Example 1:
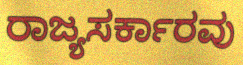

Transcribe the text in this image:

ರಾಜ್ಯಸರ್ಕಾರವು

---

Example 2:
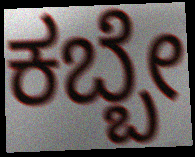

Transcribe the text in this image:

ಕಬ್ಬೇ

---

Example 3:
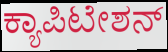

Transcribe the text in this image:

ಕ್ಯಾಪಿಟೇಶನ್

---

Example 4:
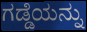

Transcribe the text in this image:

ಗಡ್ಡೆಯನ್ನು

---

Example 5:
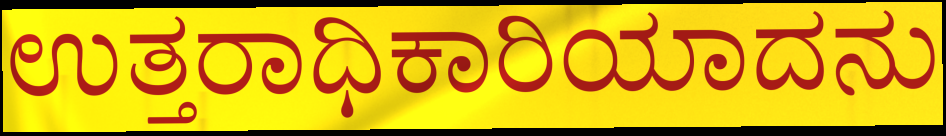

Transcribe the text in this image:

ಉತ್ತರಾಧಿಕಾರಿಯಾದನು